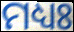
ମଧ୍ୟଃ